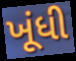
ખૂંધી